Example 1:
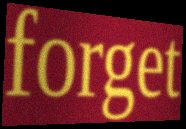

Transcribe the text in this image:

forget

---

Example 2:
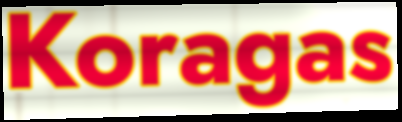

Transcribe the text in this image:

Koragas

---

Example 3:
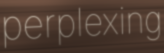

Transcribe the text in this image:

perplexing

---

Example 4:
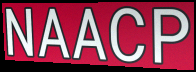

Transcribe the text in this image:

NAACP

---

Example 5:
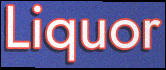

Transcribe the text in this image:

Liquor